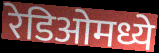
रेडिओमध्ये